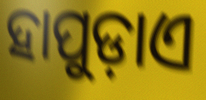
ହାପୁଡ଼ାଏ